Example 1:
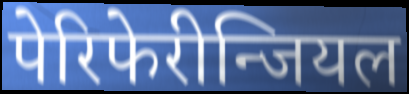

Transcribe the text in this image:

पेरिफेरीन्जियल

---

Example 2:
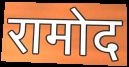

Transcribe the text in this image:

रामोद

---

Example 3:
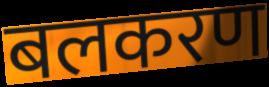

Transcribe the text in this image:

बलकरण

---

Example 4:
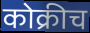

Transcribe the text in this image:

कोक्रीच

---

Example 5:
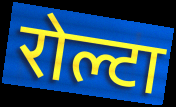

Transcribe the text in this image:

रोल्टा